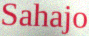
Sahajo